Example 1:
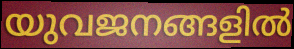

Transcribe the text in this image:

യുവജനങ്ങളിൽ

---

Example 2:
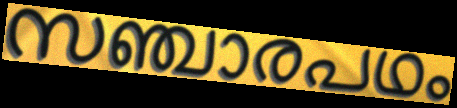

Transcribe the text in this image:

സഞ്ചാരപഥം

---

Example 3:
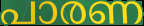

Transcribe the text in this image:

പാരണ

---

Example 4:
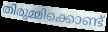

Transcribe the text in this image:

തിരുമ്മിക്കൊണ്ട്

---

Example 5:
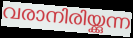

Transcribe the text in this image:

വരാനിരിയ്ക്കുന്ന